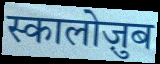
स्कालोज़ुब